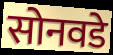
सोनवडे